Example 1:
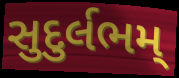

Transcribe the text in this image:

સુદુર્લભમ્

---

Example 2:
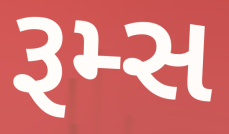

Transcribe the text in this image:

રૂમ્સ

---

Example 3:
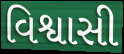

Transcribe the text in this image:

વિશ્વાસી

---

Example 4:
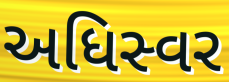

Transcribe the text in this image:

અધિસ્વર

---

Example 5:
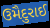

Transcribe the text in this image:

ઉમૈદુરાઈ